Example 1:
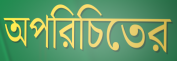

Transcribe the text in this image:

অপরিচিতের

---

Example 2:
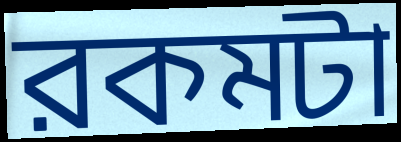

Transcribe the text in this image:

রকমটা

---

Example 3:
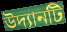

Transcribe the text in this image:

উদ্যানটি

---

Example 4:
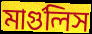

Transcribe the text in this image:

মার্গুলিস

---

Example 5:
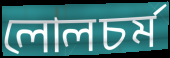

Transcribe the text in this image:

লোলচর্ম